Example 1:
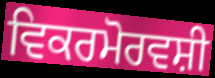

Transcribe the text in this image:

ਵਿਕਰਮੋਰਵਸ਼ੀ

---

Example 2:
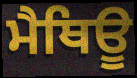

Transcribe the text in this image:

ਮੈਥਿਊ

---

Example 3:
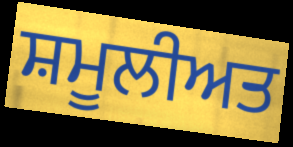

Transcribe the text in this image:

ਸ਼ਮੂਲੀਅਤ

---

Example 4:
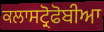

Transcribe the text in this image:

ਕਲਾਸਟ੍ਰੋਫੋਬੀਆ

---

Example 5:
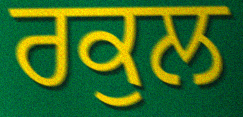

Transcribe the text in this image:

ਰਕੁਲ